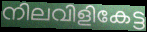
നിലവിളികേട്ട